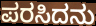
ಪರಸಿದನು